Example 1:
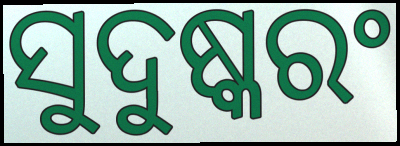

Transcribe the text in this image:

ସୁଦୁଷ୍କରଂ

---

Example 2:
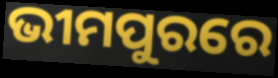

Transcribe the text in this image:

ଭୀମପୁରରେ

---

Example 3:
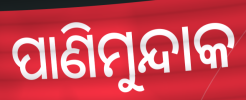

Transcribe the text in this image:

ପାଣିମୁନ୍ଦାକ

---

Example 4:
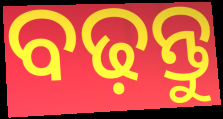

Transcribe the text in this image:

ବଢ଼ନ୍ତୁ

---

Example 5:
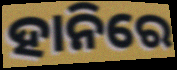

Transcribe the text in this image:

ହାନିରେ